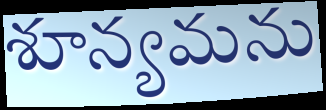
శూన్యమను